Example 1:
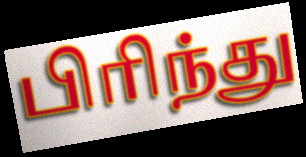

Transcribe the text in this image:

பிரிந்து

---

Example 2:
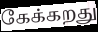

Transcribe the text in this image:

கேக்கறது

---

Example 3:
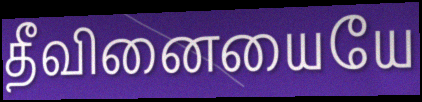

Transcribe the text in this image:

தீவினையையே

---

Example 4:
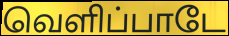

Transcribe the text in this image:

வெளிப்பாடே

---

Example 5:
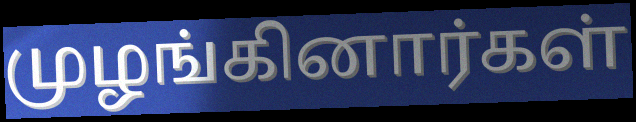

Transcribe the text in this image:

முழங்கினார்கள்